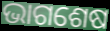
ଭାଗଶେଷ